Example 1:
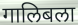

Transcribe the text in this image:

गालिबला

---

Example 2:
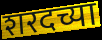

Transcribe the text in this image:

शरदच्या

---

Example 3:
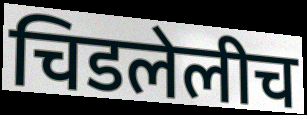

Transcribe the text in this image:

चिडलेलीच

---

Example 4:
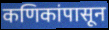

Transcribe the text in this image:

कणिकांपासून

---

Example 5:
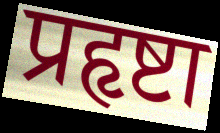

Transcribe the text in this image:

प्रहृष्टा